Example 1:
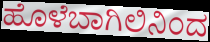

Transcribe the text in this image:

ಹೊಳೆಬಾಗಿಲಿನಿಂದ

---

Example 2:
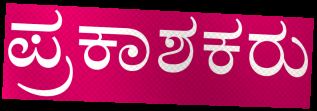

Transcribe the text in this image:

ಪ್ರಕಾಶಕರು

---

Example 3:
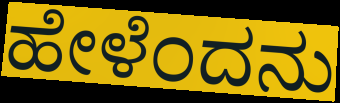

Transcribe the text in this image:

ಹೇಳೆಂದನು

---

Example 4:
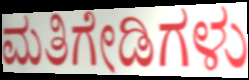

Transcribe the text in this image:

ಮತಿಗೇಡಿಗಳು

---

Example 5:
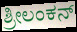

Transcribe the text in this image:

ಶ್ರೀಲಂಕನ್